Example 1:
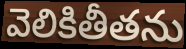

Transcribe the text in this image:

వెలికితీతను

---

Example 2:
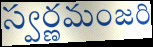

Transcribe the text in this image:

స్వర్ణమంజరి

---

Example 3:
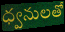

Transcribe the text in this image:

ధ్వనులతో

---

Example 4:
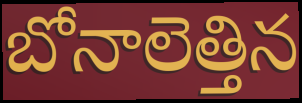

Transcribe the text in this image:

బోనాలెత్తిన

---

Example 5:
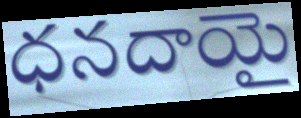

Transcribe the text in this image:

ధనదాయై